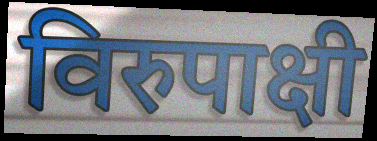
विरुपाक्षी